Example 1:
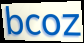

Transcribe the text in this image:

bcoz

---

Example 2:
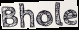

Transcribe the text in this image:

Bhole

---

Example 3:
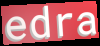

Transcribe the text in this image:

edra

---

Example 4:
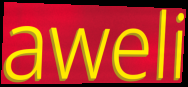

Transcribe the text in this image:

aweli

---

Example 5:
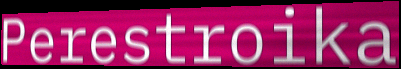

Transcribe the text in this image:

Perestroika